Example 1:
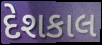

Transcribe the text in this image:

દેશકાલ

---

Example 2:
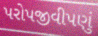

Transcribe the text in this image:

પરોપજીવીપણું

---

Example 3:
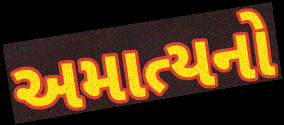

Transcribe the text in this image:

અમાત્યનો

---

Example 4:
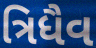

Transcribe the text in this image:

ત્રિધૈવ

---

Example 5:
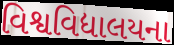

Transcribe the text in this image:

વિશ્વવિદ્યાલયના